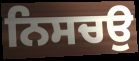
ਨਿਸਚਉ